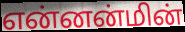
என்னன்மின்